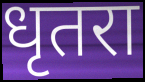
धृतरा